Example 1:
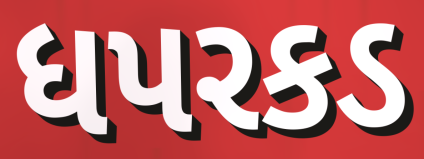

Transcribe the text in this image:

ધપરકડ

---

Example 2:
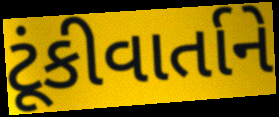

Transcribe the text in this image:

ટૂંકીવાર્તાને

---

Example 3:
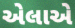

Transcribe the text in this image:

એલાએ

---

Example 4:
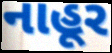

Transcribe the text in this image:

નાહૂર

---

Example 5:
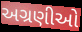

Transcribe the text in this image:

અગ્રણીઓ